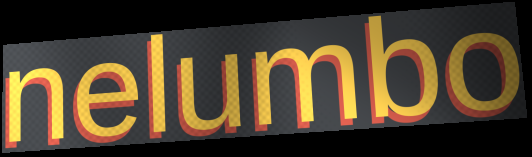
nelumbo